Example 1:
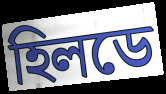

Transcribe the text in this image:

হিলডে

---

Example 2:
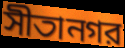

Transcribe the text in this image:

সীতানগর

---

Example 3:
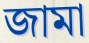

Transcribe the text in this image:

জামা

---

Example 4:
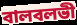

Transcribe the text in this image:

বালবলভী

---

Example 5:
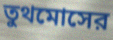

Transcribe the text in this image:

তুথমোসের